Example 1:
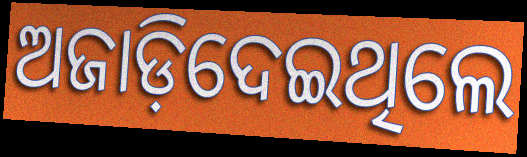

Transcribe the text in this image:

ଅଜାଡ଼ିଦେଇଥିଲେ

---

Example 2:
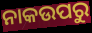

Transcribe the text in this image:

ନାକଉପରୁ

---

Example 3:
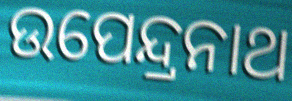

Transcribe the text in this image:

ଉପେନ୍ଦ୍ରନାଥ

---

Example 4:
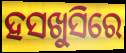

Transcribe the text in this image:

ହସଖୁସିରେ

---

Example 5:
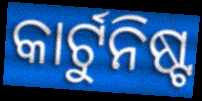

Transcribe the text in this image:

କାର୍ଟୁନିଷ୍ଟ